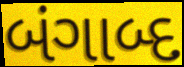
બંગાબ્દ